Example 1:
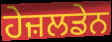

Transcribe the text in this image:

ਹੇਜ਼ਲਡੇਨ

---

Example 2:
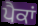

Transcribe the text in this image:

ਪੈਕਾਂ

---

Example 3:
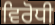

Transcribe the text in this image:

ਵਿਰੋਧੀ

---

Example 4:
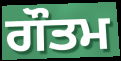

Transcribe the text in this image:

ਗੌਤਮ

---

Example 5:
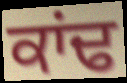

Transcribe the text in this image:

ਕਾਂਢ